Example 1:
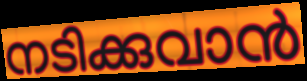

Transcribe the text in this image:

നടിക്കുവാൻ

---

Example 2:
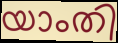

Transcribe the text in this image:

യാംതി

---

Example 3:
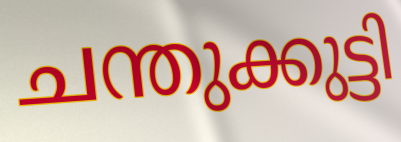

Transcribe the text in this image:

ചന്തുക്കുട്ടി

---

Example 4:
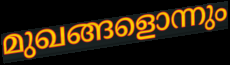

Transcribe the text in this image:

മുഖങ്ങളൊന്നും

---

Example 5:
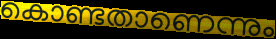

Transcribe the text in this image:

കൊണ്ടതാണെന്നും